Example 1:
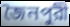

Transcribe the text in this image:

জৈনপুরী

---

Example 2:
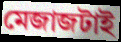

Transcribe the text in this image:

মেজাজটাই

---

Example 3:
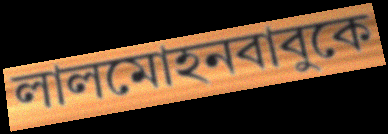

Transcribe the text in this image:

লালমোহনবাবুকে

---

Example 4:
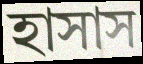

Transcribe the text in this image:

হাসাস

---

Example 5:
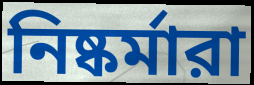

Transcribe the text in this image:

নিষ্কর্মারা